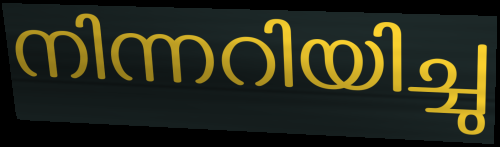
നിന്നറിയിച്ചു